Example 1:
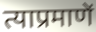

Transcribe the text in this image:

त्याप्रमाणें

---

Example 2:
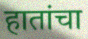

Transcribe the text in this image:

हातांचा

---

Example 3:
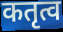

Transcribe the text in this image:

कतृत्व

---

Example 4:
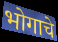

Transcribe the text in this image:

भोगाचे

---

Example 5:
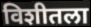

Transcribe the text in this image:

विशीतला